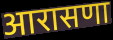
आरासणा